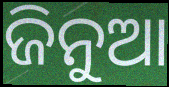
ଜିନୁଆ